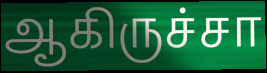
ஆகிருச்சா